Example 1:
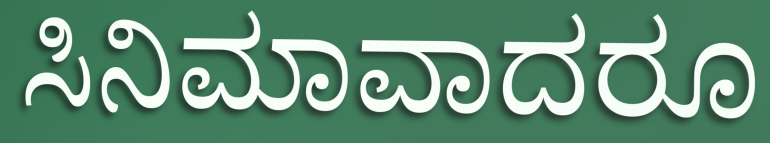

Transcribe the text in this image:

ಸಿನಿಮಾವಾದರೂ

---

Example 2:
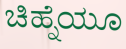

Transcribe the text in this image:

ಚಿಹ್ನೆಯೂ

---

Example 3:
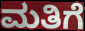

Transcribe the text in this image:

ಮತಿಗೆ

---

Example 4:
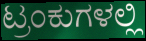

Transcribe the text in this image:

ಟ್ರಂಕುಗಳಲ್ಲಿ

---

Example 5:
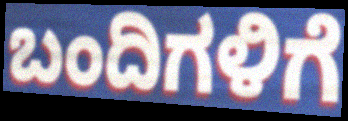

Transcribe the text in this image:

ಬಂದಿಗಳಿಗೆ